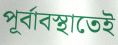
পূর্বাবস্থাতেই